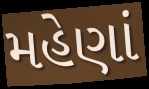
મહેણાં